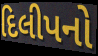
દિલીપનો